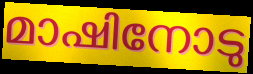
മാഷിനോടു